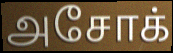
அசோக்